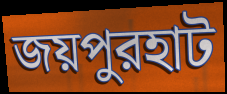
জয়পুরহাট